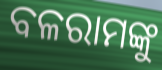
ବଳରାମଙ୍କୁ